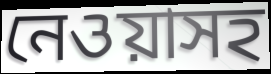
নেওয়াসহ